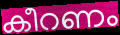
കീറണം